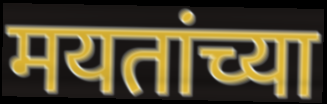
मयतांच्या